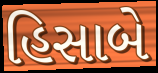
હિસાબે